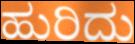
ಹುರಿದು